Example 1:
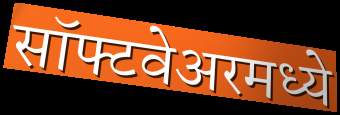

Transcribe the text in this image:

सॉफ्टवेअरमध्ये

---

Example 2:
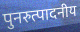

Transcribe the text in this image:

पुनरुत्पादनीय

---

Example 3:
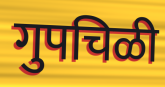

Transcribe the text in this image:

गुपचिळी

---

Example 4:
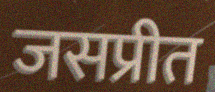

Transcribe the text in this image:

जसप्रीत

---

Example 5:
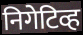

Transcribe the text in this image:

निगेटिव्ह